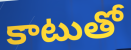
కాటుతో